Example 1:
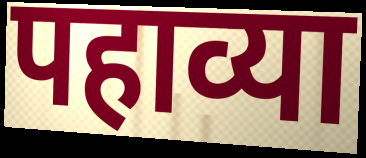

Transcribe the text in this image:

पहाव्या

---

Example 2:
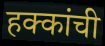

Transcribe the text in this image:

हक्कांची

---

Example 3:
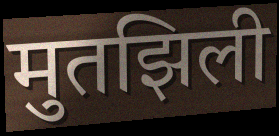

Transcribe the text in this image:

मुतझिली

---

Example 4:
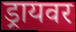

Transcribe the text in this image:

ड्रायवर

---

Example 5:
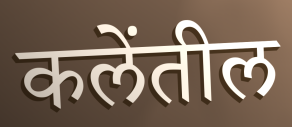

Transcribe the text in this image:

कलेंतील